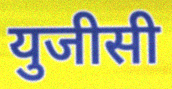
युजीसी